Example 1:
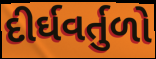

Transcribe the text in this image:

દીર્ઘવર્તુળો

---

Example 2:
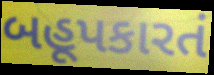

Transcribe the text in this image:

બહૂપકારતં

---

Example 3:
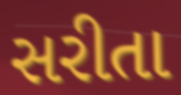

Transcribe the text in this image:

સરીતા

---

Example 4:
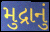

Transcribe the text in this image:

મુદ્રાનું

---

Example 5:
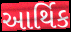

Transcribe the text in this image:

આર્થિક